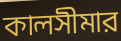
কালসীমার